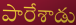
పారేశాడు